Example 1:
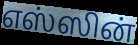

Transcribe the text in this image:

எஸ்ஸின்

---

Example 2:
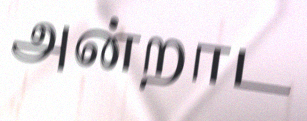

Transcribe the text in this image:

அன்றாட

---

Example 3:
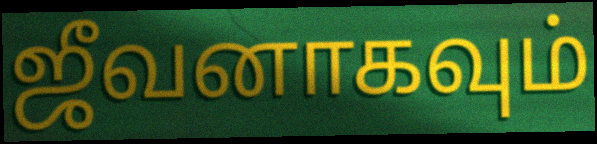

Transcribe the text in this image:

ஜீவனாகவும்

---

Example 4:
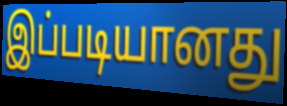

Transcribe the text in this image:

இப்படியானது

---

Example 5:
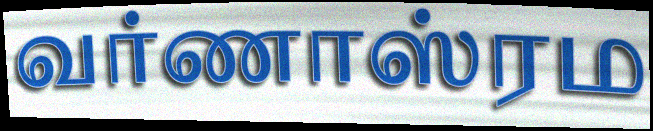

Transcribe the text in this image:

வர்ணாஸ்ரம